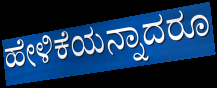
ಹೇಳಿಕೆಯನ್ನಾದರೂ